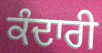
ਕੰਦਾਰੀ